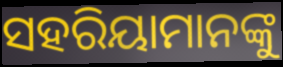
ସହରିୟାମାନଙ୍କୁ